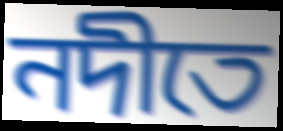
নদীতে